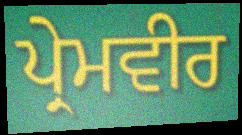
ਪ੍ਰੇਮਵੀਰ